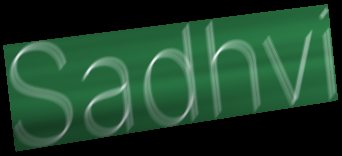
Sadhvi